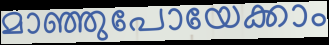
മാഞ്ഞുപോയേക്കാം